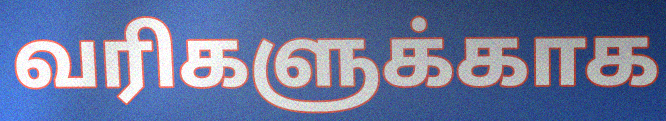
வரிகளுக்காக